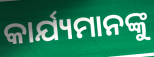
କାର୍ଯ୍ୟମାନଙ୍କୁ